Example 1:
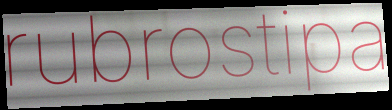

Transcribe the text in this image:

rubrostipa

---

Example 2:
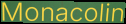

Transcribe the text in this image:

Monacolin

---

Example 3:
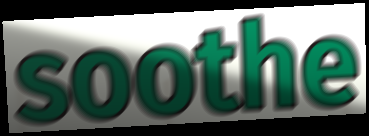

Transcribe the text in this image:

soothe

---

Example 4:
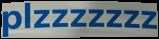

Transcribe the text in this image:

plzzzzzzz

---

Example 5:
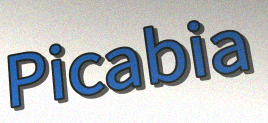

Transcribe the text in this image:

Picabia